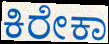
ಕಿರೇಕಾ